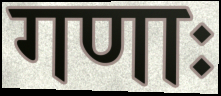
गणाः